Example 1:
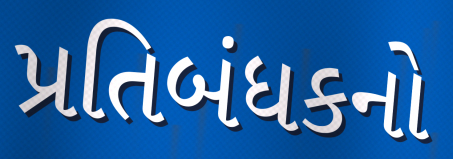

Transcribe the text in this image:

પ્રતિબંધકનો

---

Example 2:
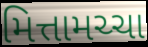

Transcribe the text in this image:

મિત્તામચ્ચા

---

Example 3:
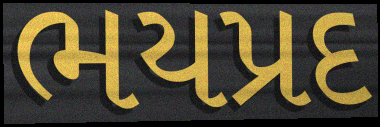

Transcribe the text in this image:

ભયપ્રદ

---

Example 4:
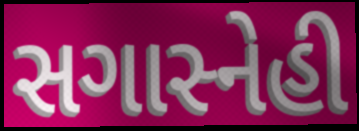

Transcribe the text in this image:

સગાસ્નેહી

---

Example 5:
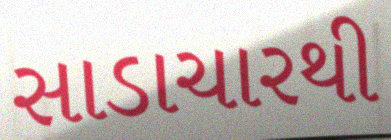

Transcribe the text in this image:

સાડાચારથી